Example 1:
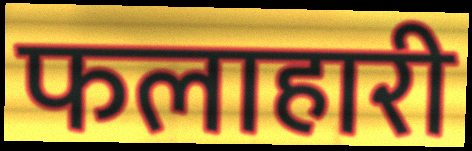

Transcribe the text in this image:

फलाहारी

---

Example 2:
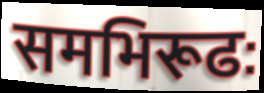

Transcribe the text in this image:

समभिरूढः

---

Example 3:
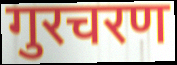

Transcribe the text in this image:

गुरचरण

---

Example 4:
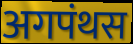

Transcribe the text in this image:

अगपंथस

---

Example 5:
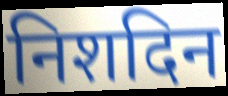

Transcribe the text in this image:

निशदिन